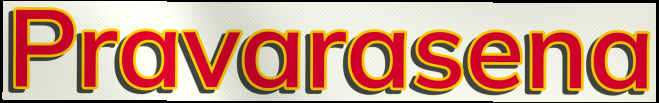
Pravarasena